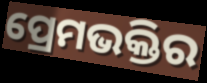
ପ୍ରେମଭକ୍ତିର